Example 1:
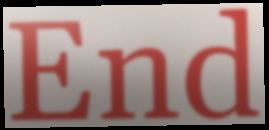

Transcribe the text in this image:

End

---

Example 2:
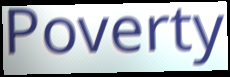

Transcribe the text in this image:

Poverty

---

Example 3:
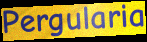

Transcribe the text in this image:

Pergularia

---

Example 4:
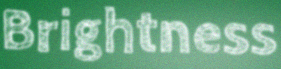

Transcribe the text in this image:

Brightness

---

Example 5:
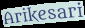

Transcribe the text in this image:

Arikesari